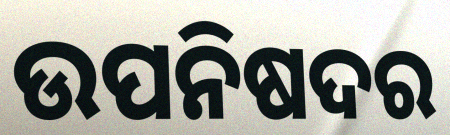
ଉପନିଷଦର